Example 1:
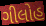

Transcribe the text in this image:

ગીલોહ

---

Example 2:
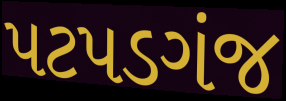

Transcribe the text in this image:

પટપડગંજ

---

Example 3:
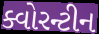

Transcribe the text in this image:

ક્વોરન્ટીન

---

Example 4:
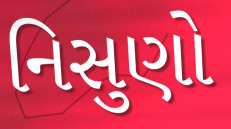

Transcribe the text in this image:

નિસુણો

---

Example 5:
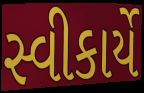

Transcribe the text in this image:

સ્વીકાર્યે